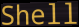
Shell